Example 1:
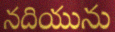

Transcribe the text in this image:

నదియును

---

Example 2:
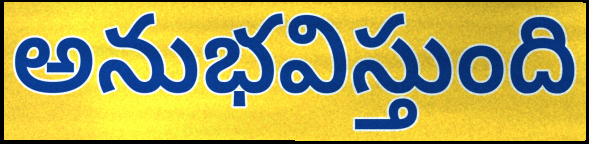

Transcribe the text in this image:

అనుభవిస్తుంది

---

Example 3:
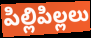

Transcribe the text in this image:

పిల్లిపిల్లలు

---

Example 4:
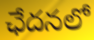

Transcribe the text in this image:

ఛేదనలో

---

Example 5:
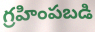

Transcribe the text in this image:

గ్రహింపబడి